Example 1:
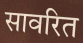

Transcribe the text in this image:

सावरित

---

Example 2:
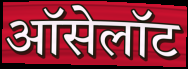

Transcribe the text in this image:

ऑसेलॉट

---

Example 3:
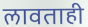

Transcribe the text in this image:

लावताही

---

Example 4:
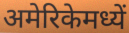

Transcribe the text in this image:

अमेरिकेमध्यें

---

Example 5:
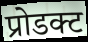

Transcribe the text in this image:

प्रोडक्ट